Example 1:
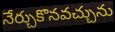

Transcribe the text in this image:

నేర్చుకొనవచ్చును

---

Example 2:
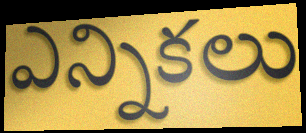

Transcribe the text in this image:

ఎన్నికలు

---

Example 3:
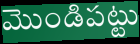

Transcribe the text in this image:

మొండిపట్టు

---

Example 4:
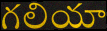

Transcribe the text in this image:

గలియా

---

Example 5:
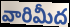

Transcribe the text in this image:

వారిమీద